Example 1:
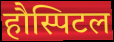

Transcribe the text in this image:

हौस्पिटल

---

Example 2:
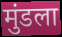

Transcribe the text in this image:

मुंडला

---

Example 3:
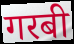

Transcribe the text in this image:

गरबी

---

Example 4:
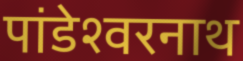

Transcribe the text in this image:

पांडेश्वरनाथ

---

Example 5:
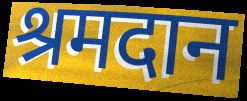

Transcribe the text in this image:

श्रमदान